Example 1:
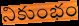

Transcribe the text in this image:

నికుంభం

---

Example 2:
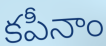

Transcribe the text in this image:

కపీనాం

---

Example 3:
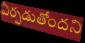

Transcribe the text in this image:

ఏర్పడుతోందని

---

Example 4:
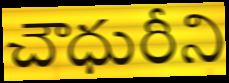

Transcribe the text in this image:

చౌధురీని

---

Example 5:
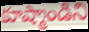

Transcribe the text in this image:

కూష్మాండిని